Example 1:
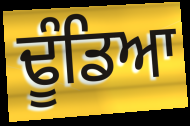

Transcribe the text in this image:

ਢੂੰਡਿਆ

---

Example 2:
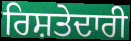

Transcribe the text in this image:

ਰਿਸ਼ਤੇਦਾਰੀ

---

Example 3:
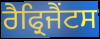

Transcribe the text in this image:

ਰੈਫ੍ਰਿਜੈਂਟਸ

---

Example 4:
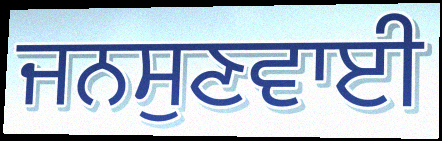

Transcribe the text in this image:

ਜਨਸੁਣਵਾਈ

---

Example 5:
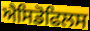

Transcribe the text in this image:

ਐਸਿਡੋਫਿਲਸ